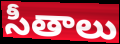
సీతాలు